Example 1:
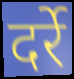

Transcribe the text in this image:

दर्रे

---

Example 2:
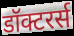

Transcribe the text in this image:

डॉक्टरर्स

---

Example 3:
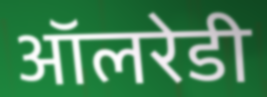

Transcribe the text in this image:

ऑलरेडी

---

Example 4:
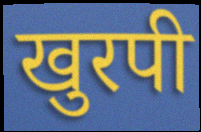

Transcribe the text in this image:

खुरपी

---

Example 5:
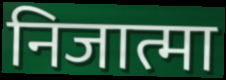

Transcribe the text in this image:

निजात्मा